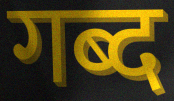
गब्द